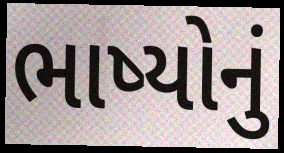
ભાષ્યોનું